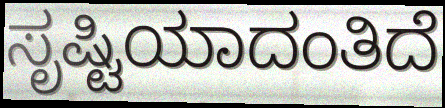
ಸೃಷ್ಟಿಯಾದಂತಿದೆ